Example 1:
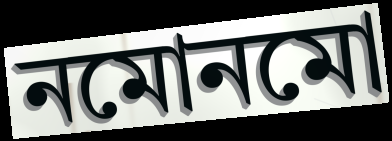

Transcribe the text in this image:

নমোনমো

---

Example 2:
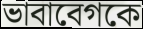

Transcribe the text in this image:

ভাবাবেগকে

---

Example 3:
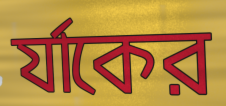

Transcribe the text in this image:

র্যাকের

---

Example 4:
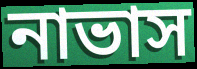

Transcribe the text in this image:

নাভাস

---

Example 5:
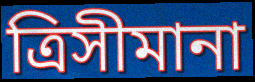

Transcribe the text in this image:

ত্রিসীমানা